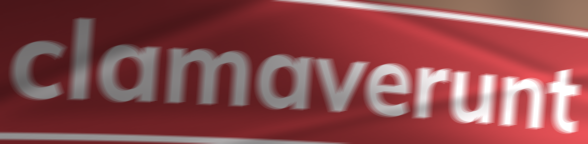
clamaverunt